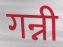
गन्नी